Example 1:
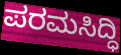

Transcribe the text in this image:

ಪರಮಸಿದ್ಧಿ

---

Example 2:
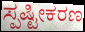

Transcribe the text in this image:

ಸ್ಪಷ್ಟೀಕರಣ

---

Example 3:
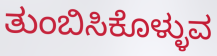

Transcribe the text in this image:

ತುಂಬಿಸಿಕೊಳ್ಳುವ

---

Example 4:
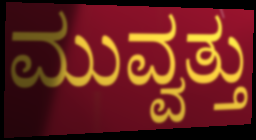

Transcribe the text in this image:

ಮುವ್ವತ್ತು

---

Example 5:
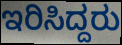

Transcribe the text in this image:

ಇರಿಸಿದ್ದರು